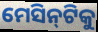
ମେସିନ୍‍ଟିକୁ